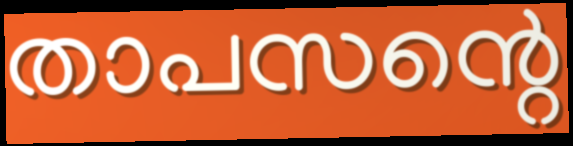
താപസന്റെ